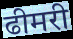
ढीमरी